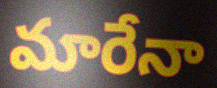
మారేనా